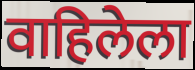
वाहिलेला